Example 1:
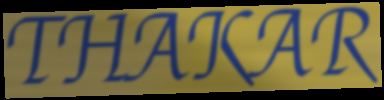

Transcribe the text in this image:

THAKAR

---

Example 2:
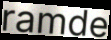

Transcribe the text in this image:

ramde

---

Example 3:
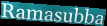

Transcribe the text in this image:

Ramasubba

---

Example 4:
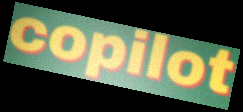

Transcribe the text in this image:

copilot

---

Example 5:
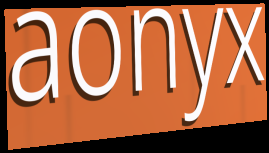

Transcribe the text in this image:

aonyx